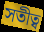
সতীত্ব